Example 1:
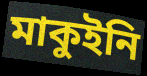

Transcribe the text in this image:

মাকুইনি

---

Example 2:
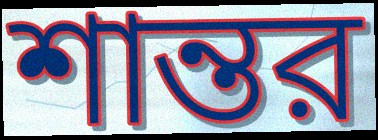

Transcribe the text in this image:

শান্তর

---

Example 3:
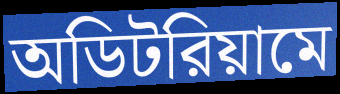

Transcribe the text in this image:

অডিটরিয়ামে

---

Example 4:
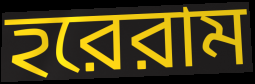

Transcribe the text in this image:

হরেরাম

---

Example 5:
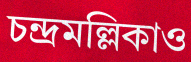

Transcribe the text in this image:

চন্দ্রমল্লিকাও